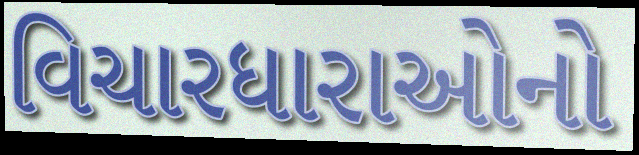
વિચારધારાઓનો